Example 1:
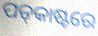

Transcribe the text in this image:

ପଡ୍‌କାଷ୍ଟରେ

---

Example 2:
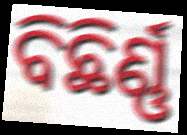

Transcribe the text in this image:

ବିଛିର୍ଣ୍ଣ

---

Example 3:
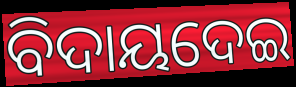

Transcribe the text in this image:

ବିଦାୟଦେଇ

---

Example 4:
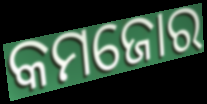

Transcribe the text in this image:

କମଜୋର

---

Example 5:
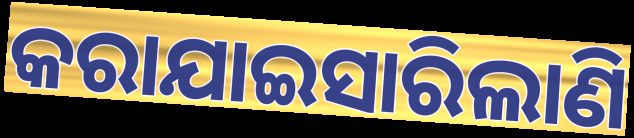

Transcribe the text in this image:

କରାଯାଇସାରିଲାଣି